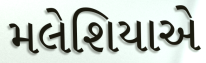
મલેશિયાએ